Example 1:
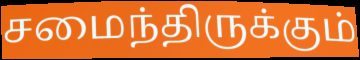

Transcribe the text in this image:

சமைந்திருக்கும்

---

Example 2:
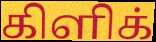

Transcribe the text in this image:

கிளிக்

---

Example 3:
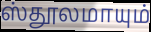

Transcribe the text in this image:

ஸ்தூலமாயும்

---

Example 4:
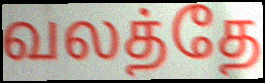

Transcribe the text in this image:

வலத்தே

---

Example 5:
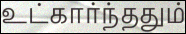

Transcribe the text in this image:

உட்கார்ந்ததும்